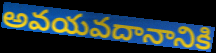
అవయవదానానికి